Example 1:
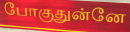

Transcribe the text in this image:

போகுதுன்னே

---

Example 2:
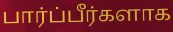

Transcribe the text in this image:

பார்ப்பீர்களாக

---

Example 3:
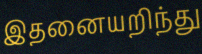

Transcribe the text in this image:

இதனையறிந்து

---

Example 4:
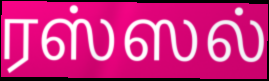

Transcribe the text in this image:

ரஸ்ஸல்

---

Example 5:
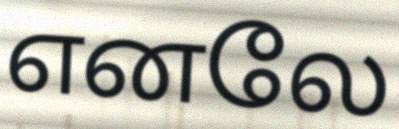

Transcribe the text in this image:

எனலே